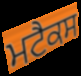
ਮਟੈਕਸ